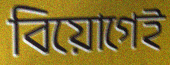
বিয়োগেই